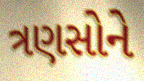
ત્રણસોને